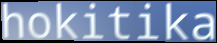
hokitika